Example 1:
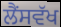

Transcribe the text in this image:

ਲੈਂਸਵੱਖ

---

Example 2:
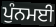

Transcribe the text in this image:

ਪੁੰਨਮਈ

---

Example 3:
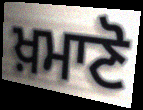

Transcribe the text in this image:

ਖ਼ਮਾਣੋ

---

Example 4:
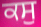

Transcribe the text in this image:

ਕਸੁ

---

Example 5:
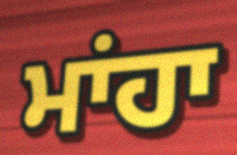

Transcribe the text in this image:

ਮਾਂਹਾ